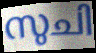
സുചി